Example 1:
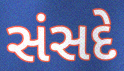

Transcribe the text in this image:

સંસદે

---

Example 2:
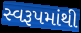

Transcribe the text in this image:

સ્વરૂપમાંથી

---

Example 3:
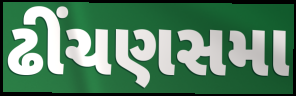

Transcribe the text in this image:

ઢીંચણસમા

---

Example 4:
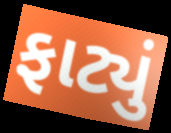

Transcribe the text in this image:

ફાટ્યું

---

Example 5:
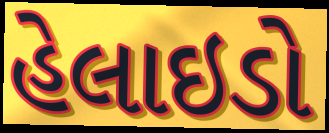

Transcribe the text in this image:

હેલાઇડો